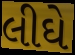
લીઘે